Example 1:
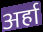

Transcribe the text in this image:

अर्हा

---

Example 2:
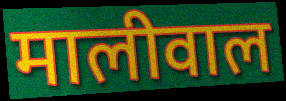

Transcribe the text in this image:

मालीवाल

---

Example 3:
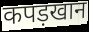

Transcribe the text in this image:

कपड़खान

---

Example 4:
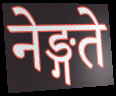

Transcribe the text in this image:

नेङ्गते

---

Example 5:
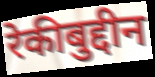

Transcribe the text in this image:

रेकीबुद्दीन